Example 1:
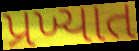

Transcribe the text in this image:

પ્રખ્યાત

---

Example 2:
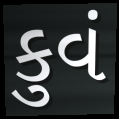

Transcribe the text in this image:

કુવં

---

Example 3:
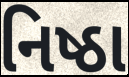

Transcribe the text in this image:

નિષ્ઠા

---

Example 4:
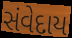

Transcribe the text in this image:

સંવેદાય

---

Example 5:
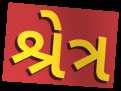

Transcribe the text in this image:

શ્રેત્ર